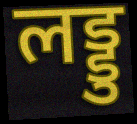
लड्डु